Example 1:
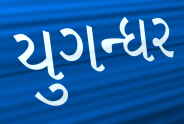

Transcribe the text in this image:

યુગન્ધર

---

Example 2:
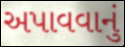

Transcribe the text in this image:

અપાવવાનું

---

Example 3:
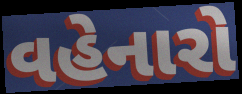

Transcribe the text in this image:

વહેનારો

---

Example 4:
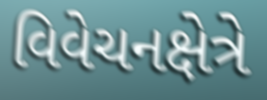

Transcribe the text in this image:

વિવેચનક્ષેત્રે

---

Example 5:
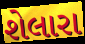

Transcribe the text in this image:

શેલારા